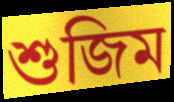
শুজিম